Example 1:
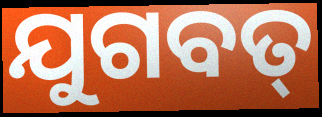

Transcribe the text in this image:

ଯୁଗବତ୍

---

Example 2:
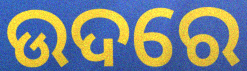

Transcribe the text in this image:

ଉଦରେ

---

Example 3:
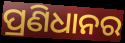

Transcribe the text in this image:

ପ୍ରଣିଧାନର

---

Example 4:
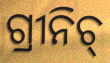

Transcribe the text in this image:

ଗ୍ରୀନିଚ୍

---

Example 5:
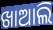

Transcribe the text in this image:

ଖାଆଲି